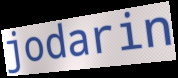
jodarin